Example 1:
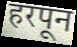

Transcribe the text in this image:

हरपून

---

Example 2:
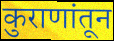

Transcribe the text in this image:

कुराणांतून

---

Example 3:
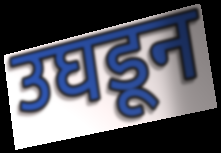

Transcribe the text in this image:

उघडून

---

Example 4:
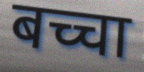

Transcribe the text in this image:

बच्चा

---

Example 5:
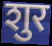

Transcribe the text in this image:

शुर